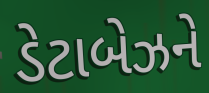
ડેટાબેઝને